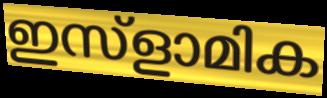
ഇസ്ളാമിക